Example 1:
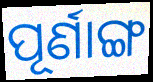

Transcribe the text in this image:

ପୂର୍ଣାଙ୍ଗ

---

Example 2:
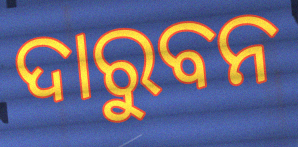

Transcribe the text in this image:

ଦାରୁବନ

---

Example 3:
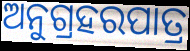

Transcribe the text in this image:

ଅନୁଗ୍ରହରପାତ୍ର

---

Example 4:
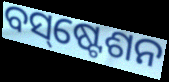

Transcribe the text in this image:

ବସ୍‌ଷ୍ଟେଶନ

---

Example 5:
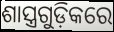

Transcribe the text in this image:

ଶାସ୍ତ୍ରଗୁଡ଼ିକରେ